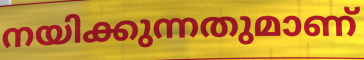
നയിക്കുന്നതുമാണ്